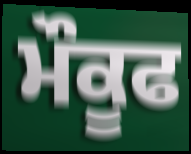
ਮੌਕੂਫ